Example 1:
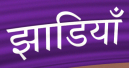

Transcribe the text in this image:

झाडियाँ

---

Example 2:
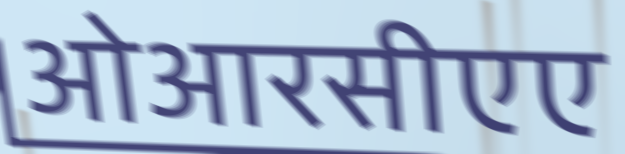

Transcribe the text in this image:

ओआरसीएए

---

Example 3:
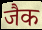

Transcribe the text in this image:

जैक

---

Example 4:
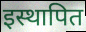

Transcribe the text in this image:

इस्थापित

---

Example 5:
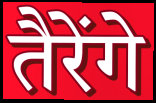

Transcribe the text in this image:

तैरेंगे